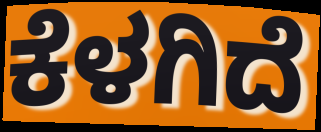
ಕೆಳಗಿದೆ